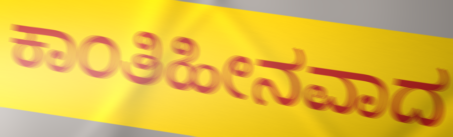
ಕಾಂತಿಹೀನವಾದ